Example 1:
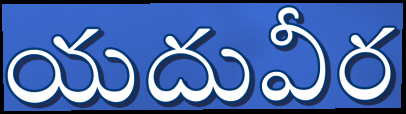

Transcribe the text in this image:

యదువీర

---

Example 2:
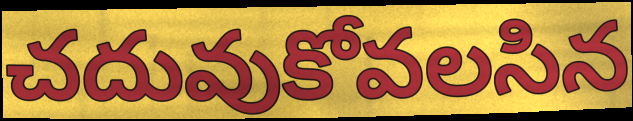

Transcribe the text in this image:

చదువుకోవలసిన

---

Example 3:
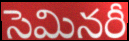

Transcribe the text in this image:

సెమినరీ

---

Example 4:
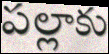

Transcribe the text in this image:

పల్లాకు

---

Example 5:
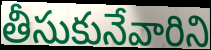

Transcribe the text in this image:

తీసుకునేవారిని